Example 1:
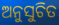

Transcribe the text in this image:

ଅନୁସୁଚିତ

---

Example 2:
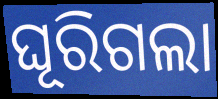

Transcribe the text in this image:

ଘୂରିଗଲା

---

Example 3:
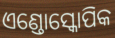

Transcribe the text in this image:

ଏଣ୍ଡୋସ୍କୋପିକ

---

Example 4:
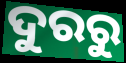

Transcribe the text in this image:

ଦୁରରୁ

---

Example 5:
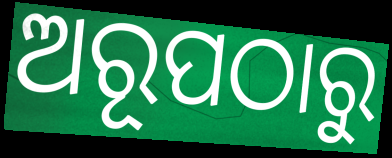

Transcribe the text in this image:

ଅରୂପଠାରୁ